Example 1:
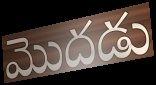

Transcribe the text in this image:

మొదడు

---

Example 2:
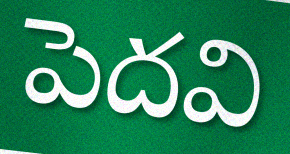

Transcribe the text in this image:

పెదవి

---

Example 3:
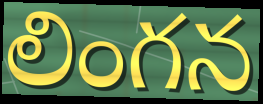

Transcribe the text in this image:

లింగన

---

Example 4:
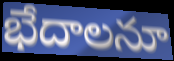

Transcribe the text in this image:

భేదాలనూ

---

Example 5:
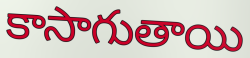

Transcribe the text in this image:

కాసాగుతాయి